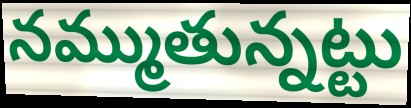
నమ్ముతున్నట్టు